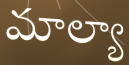
మాల్యా